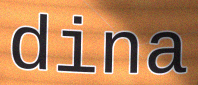
dina